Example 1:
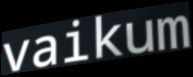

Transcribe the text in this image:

vaikum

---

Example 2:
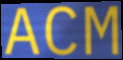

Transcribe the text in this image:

ACM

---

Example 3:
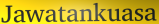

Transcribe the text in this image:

Jawatankuasa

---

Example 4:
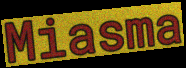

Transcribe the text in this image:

Miasma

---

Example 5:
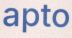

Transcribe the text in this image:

apto